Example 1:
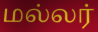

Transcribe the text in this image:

மல்லர்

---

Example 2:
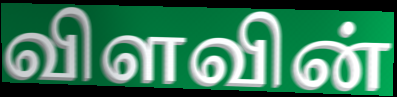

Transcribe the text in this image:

விளவின்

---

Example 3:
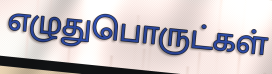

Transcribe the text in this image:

எழுதுபொருட்கள்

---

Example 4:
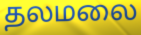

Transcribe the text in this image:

தலமலை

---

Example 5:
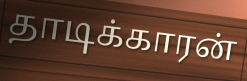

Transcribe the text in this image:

தாடிக்காரன்